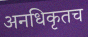
अनधिकृतच